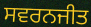
ਸਵਰਨਜੀਤ